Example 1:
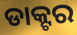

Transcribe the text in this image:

ଡାକ୍ଟର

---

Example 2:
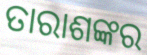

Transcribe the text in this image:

ତାରାଶଙ୍କର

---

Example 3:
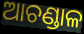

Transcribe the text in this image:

ଆଚଣ୍ଡାଳ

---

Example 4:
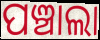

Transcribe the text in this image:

ପଞ୍ଚାଲା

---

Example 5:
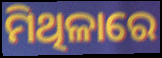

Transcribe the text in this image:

ମିଥିଳାରେ